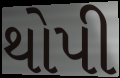
થોપી